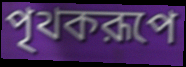
পৃথকরূপে